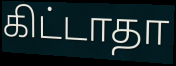
கிட்டாதா